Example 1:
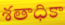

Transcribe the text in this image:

శతాధికా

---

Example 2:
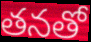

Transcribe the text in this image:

తనతో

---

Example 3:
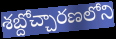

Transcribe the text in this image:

శబ్దోచ్చారణలోని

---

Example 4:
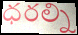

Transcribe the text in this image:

ధరల్ని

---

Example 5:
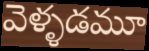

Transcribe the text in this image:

వెళ్ళడమూ